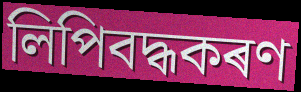
লিপিবদ্ধকৰণ